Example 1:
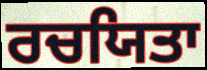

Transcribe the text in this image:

ਰਚਯਿਤਾ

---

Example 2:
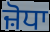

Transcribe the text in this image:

ਜ਼ੋਧਾ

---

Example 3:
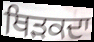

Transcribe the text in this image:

ਥਿੜਕਦਾ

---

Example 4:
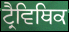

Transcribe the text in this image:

ਟ੍ਰੈਵਿਥਿਕ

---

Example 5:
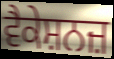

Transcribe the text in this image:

ਵੈਕੇਸ਼ਨਜ਼